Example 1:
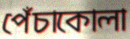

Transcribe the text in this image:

পেঁচাকোলা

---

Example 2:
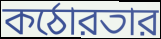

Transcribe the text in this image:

কঠোরতার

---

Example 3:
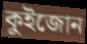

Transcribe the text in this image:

কুইজোন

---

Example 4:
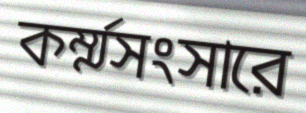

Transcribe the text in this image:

কর্ম্মসংসারে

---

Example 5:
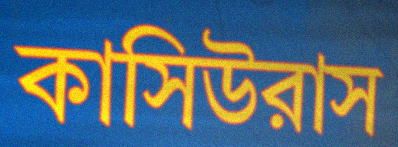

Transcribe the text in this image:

কাসিউরাস